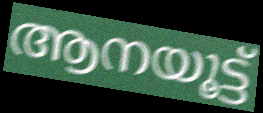
ആനയൂട്ട്